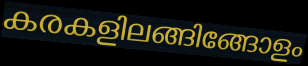
കരകളിലങ്ങിങ്ങോളം